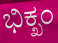
ಭಿಕ್ಖಂ